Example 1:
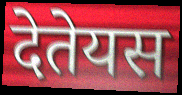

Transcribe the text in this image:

देतेयस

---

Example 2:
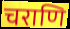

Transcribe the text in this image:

चराणि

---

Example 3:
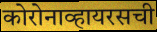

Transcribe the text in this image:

कोरोनाव्हायरसची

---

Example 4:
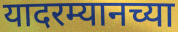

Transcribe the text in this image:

यादरम्यानच्या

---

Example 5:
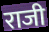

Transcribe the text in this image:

राजी